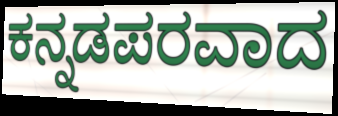
ಕನ್ನಡಪರವಾದ